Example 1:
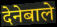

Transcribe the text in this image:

देनेबाले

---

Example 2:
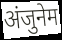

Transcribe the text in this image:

अंजुनेम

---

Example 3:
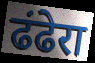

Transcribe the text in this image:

ढंढेरा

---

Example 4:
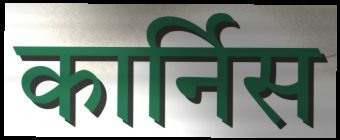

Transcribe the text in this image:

कार्निस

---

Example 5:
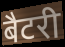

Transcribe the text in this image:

बैटरी